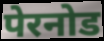
पेरनोड